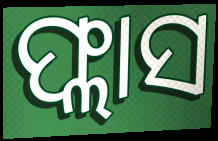
ଫ୍ଲାସ